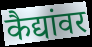
कैद्यांवर